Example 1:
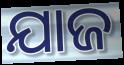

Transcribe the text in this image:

ଯାଜ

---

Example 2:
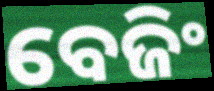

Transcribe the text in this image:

ବେଜିଂ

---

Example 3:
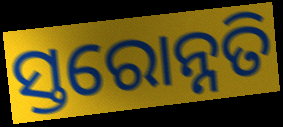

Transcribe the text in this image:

ସ୍ତରୋନ୍ନତି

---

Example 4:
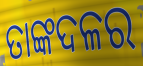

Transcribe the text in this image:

ତାଙ୍କଦଳର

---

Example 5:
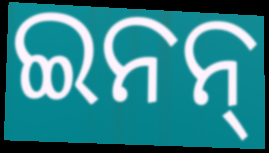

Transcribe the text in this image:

ଇନନ୍